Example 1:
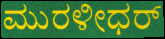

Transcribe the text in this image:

ಮುರಳೀಧರ್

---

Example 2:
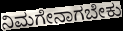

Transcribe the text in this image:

ನಿಮಗೇನಾಗಬೇಕು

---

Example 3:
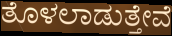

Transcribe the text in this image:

ತೊಳಲಾಡುತ್ತೇವೆ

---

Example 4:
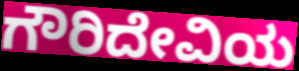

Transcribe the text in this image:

ಗೌರಿದೇವಿಯ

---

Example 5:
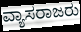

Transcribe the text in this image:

ವ್ಯಾಸರಾಜರು